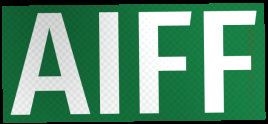
AIFF